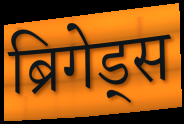
ब्रिगेड्स